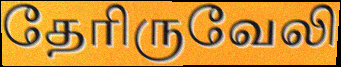
தேரிருவேலி